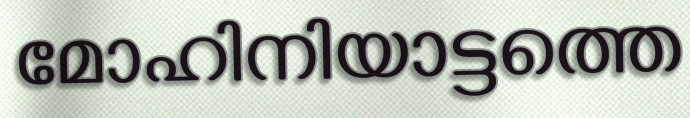
മോഹിനിയാട്ടത്തെ